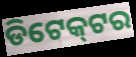
ଡିଟେକ୍‌ଟର